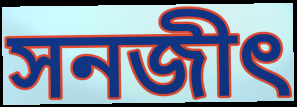
সনজীৎ